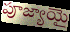
పూజ్యాయై